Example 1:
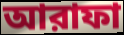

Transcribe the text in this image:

আরাফা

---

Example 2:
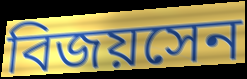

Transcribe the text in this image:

বিজয়সেন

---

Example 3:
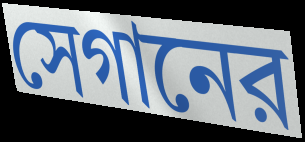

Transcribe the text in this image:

সেগানের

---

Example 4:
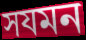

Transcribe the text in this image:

সযমন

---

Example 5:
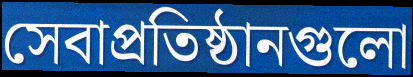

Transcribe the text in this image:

সেবাপ্রতিষ্ঠানগুলো